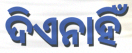
ଦିଏନାହିଁ